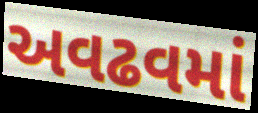
અવઢવમાં